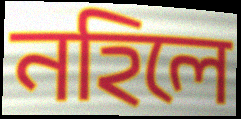
নহিলে